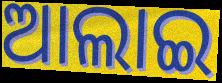
ଆଲାଇ